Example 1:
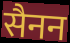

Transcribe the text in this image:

सैनन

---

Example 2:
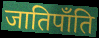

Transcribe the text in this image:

जातिपाँति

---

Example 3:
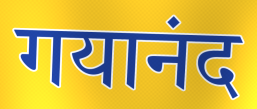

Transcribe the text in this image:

गयानंद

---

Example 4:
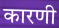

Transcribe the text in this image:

कारणी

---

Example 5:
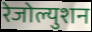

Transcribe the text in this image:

रेजोल्युशन